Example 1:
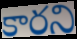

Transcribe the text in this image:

కారని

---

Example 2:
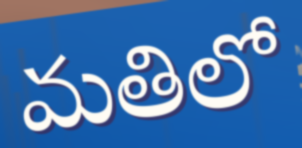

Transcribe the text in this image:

మతిలో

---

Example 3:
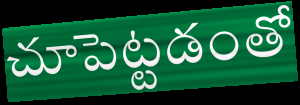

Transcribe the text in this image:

చూపెట్టడంతో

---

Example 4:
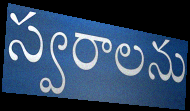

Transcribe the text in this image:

స్వరాలను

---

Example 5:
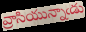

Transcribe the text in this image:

వ్రాసియున్నాఁడు